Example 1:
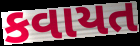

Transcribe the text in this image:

કવાયત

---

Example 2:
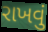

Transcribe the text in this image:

રાખવું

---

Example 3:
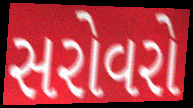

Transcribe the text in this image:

સરોવરો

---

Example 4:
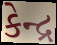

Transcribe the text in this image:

કેન્દ્ર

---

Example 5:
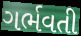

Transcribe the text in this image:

ગર્ભવતી